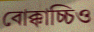
বোক্কাচ্চিও